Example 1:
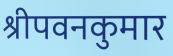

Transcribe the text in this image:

श्रीपवनकुमार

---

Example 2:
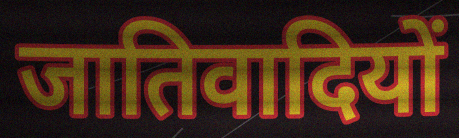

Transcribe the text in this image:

जातिवादियों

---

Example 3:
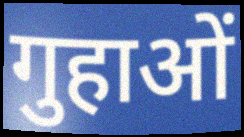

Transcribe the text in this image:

गुहाओं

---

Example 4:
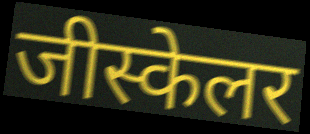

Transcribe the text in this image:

जीस्केलर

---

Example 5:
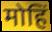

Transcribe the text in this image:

मोहिं